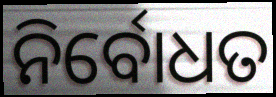
ନିର୍ବୋଧତ